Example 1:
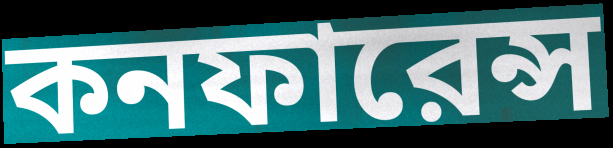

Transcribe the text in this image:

কনফারেন্স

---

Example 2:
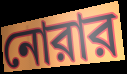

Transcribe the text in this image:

নোরার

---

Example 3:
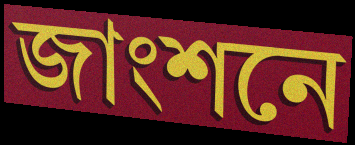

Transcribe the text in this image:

জাংশনে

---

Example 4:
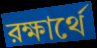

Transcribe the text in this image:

রক্ষার্থে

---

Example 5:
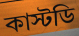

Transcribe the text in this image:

কাস্টডি